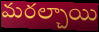
మరల్చాయి